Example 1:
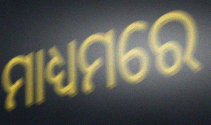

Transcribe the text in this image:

ମାଧ୍ୟମରେ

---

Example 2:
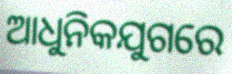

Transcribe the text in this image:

ଆଧୁନିକଯୁଗରେ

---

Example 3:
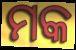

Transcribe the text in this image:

ମକ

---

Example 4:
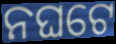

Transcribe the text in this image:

ନଘଟେ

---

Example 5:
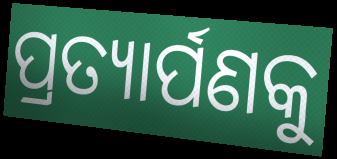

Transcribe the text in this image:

ପ୍ରତ୍ୟାର୍ପଣକୁ